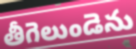
తీగెలుండెను